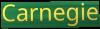
Carnegie